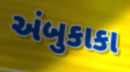
અંબુકાકા